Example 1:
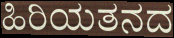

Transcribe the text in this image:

ಹಿರಿಯತನದ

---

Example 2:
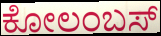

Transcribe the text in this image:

ಕೋಲಂಬಸ್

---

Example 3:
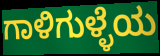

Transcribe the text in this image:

ಗಾಳಿಗುಳ್ಳೆಯ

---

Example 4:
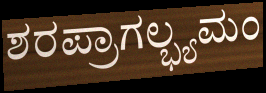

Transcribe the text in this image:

ಶರಪ್ರಾಗಲ್ಭ್ಯಮಂ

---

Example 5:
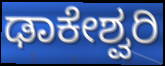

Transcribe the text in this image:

ಢಾಕೇಶ್ವರಿ